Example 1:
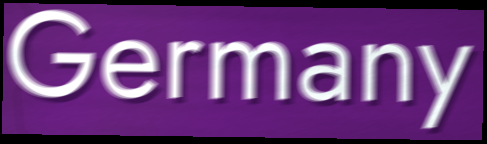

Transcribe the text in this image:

Germany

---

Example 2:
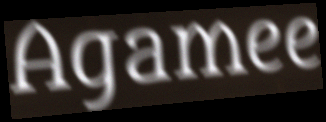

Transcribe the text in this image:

Agamee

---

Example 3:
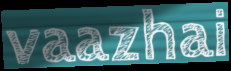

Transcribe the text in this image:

vaazhai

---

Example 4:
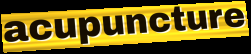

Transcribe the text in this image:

acupuncture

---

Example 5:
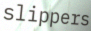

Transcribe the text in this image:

slippers